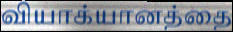
வியாக்யானத்தை